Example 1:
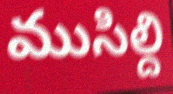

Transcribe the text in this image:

ముసిల్ది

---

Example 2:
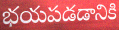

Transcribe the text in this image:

భయపడడానికి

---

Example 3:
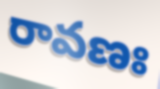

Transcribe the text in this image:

రావణః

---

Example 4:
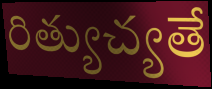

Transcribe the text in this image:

రిత్యుచ్యతే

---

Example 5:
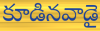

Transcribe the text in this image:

కూడినవాడై